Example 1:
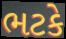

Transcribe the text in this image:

ભટકે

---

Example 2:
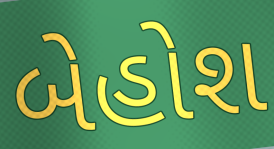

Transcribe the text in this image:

બેહોશ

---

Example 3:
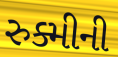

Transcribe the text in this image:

રુક્મીની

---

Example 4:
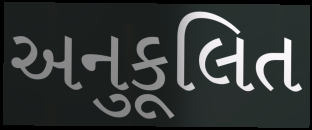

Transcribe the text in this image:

અનુકૂલિત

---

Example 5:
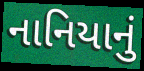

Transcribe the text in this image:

નાનિયાનું